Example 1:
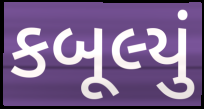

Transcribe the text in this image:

કબૂલ્યું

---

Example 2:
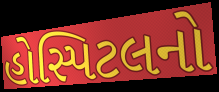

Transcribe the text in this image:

હોસ્પિટલનો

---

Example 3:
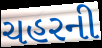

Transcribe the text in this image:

ચહરની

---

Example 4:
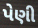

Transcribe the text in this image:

પેણી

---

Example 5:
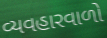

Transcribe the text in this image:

વ્યવહારવાળો